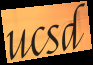
ucsd